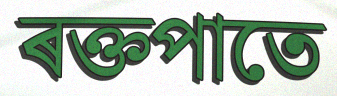
ৰক্তপাতে